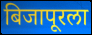
बिजापूरला